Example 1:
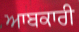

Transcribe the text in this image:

ਆਬਕਾਰੀ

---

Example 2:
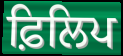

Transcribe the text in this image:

ਫ਼ਿਲਿਪ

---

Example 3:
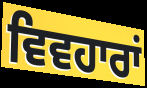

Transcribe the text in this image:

ਵਿਵਹਾਰਾਂ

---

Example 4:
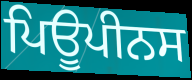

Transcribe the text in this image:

ਪਿਊਪੀਨਸ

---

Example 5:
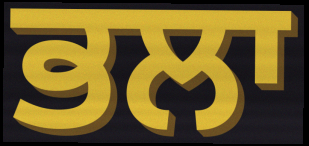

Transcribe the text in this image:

ਭਲਾ